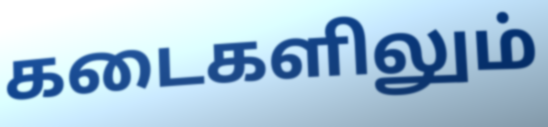
கடைகளிலும்